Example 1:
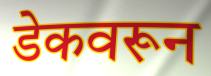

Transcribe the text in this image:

डेकवरून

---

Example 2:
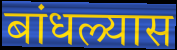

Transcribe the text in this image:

बांधल्यास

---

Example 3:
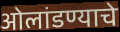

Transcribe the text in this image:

ओलांडण्याचे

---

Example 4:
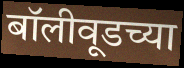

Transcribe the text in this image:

बॉलीवूडच्या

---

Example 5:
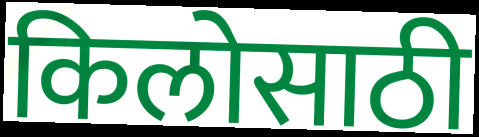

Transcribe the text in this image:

किलोसाठी